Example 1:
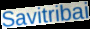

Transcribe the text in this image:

Savitribai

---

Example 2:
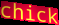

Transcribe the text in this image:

chick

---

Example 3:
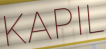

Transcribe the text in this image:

KAPIL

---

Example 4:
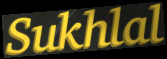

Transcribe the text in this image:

Sukhlal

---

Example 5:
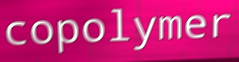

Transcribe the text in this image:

copolymer